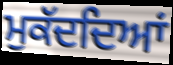
ਮੁਕੱਦਦਿਆਂ